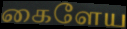
கைளேய